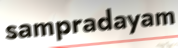
sampradayam